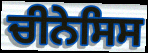
ਚੀਨੇਸਿਸ